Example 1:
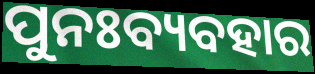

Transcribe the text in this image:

ପୁନଃବ୍ୟବହାର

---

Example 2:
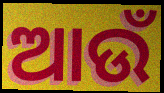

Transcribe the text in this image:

ଆଉଁ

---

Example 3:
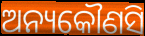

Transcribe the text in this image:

ଅନ୍ୟକୌଣସି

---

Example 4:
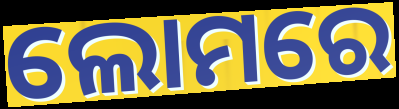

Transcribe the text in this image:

ଲୋମରେ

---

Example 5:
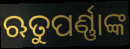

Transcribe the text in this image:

ଋତୁପର୍ଣ୍ଣାଙ୍କ